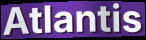
Atlantis